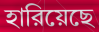
হারিয়েছে